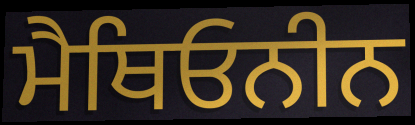
ਮੈਥਿਓਨੀਨ